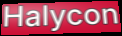
Halycon